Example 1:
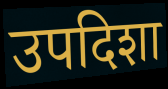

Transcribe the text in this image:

उपदिशा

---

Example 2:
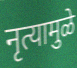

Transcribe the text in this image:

नृत्यामुळे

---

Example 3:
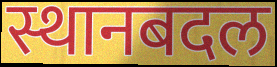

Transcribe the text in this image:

स्थानबदल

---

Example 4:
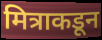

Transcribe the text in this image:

मित्राकडून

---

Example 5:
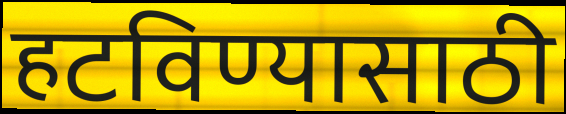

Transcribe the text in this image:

हटविण्यासाठी